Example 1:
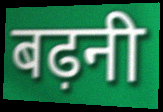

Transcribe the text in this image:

बढ़नी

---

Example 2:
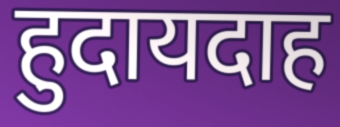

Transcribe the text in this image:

हुदायदाह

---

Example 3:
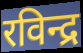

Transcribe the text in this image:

रविन्द्र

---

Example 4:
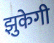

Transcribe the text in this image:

झुकेगी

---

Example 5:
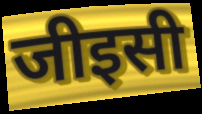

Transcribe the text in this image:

जीइसी